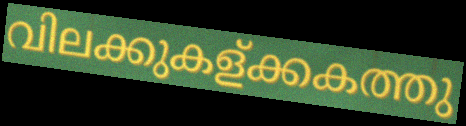
വിലക്കുകള്ക്കകത്തു